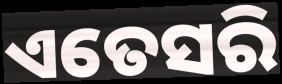
ଏତେସରି